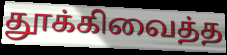
தூக்கிவைத்த